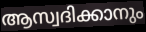
ആസ്വദിക്കാനും